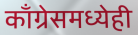
काँग्रेसमध्येही